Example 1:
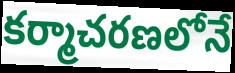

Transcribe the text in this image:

కర్మాచరణలోనే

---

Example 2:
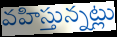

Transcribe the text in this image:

వహిస్తున్నట్లు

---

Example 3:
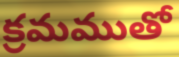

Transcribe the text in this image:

క్రమముతో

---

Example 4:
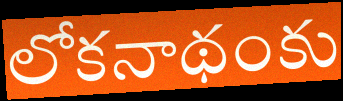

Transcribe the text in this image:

లోకనాథంకు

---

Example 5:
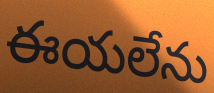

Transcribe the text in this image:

ఈయలేను